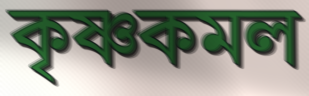
কৃষ্ণকমল